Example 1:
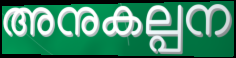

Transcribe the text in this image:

അനുകല്പന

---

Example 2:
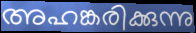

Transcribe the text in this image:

അഹങ്കരിക്കുന്നു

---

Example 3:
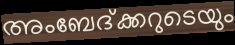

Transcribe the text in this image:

അംബേദ്ക്കറുടെയും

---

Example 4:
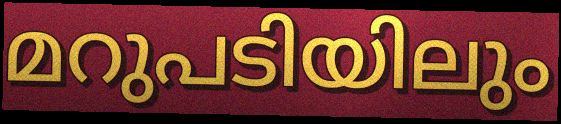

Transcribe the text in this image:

മറുപടിയിലും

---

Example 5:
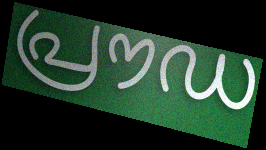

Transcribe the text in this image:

പ്രൗഡ